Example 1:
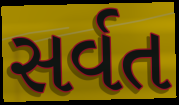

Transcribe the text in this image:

સર્વત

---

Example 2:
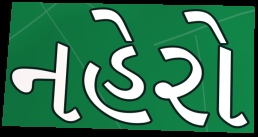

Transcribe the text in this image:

નહેરો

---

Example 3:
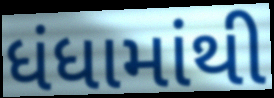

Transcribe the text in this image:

ધંધામાંથી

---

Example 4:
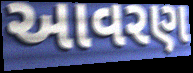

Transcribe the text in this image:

આવરણ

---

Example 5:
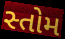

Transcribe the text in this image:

સ્તોમ